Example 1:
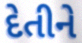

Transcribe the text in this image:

દેતીને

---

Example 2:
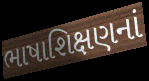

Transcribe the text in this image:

ભાષાશિક્ષણનાં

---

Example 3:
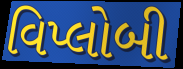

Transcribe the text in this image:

વિપ્લોબી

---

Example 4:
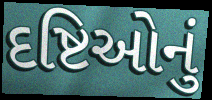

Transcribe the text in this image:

દષ્ટિઓનું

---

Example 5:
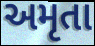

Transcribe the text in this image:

અમૃતા